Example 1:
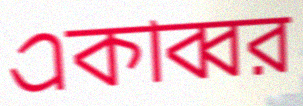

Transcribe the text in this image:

একাব্বর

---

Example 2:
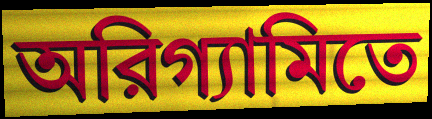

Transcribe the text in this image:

অরিগ্যামিতে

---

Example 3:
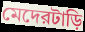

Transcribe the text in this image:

মেদেরটাড়ি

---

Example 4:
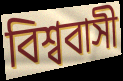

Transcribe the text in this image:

বিশ্ববাসী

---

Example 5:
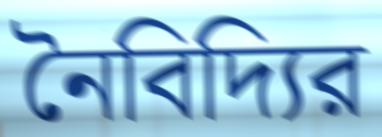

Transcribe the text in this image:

নৈবিদ্যির